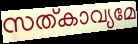
സത്കാവ്യമേ